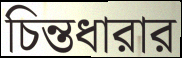
চিন্তধারার